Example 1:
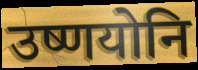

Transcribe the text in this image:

उष्णयोनि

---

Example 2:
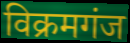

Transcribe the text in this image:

विक्रमगंज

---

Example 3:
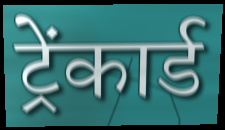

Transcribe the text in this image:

ट्रेंकार्ड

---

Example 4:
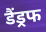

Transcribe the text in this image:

डैंड्रफ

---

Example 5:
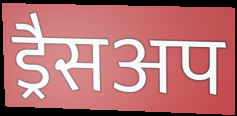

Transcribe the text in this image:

ड्रैसअप